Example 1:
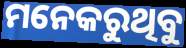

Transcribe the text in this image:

ମନେକରୁଥିବୁ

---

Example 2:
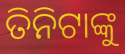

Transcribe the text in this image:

ତିନିଟାଙ୍କୁ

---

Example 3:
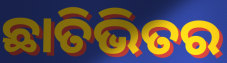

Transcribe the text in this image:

ଛାତିଭିତର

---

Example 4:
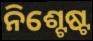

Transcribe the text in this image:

ନିଶ୍ଟେଷ୍ଟ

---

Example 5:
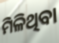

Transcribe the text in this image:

ମିଳିଥିବା